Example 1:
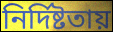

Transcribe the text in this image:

নির্দিষ্টতায়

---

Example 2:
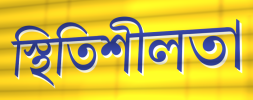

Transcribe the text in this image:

স্থিতিশীলতা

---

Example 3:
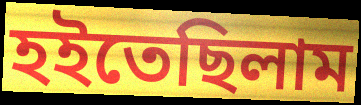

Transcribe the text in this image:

হইতেছিলাম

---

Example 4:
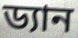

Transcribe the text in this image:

ড্যান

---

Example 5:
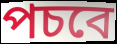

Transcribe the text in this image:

পচবে